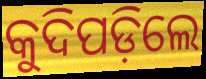
କୁଦିପଡ଼ିଲେ